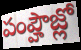
పంప్హౌజ్లో